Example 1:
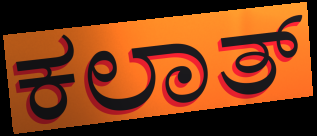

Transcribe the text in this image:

ಕಲಾತ್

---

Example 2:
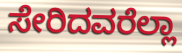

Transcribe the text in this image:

ಸೇರಿದವರೆಲ್ಲಾ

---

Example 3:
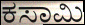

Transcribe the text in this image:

ಕಸಾಮಿ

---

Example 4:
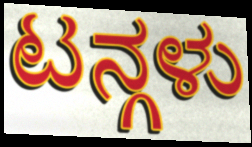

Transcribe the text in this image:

ಟನ್ಗಳು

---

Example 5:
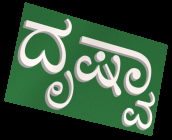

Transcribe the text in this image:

ದೃಷ್ವಾ